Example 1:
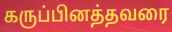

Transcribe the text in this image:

கருப்பினத்தவரை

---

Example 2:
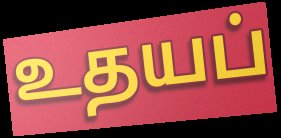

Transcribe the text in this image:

உதயப்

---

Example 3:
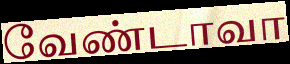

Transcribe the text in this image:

வேண்டாவா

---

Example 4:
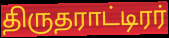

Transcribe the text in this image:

திருதராட்டிரர்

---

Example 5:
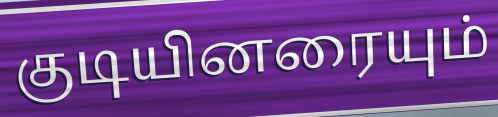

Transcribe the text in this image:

குடியினரையும்